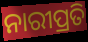
ନାରୀପ୍ରତି